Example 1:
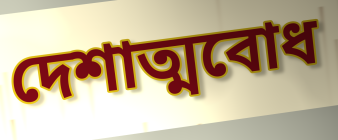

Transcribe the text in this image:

দেশাত্মবোধ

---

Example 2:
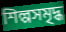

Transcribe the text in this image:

শিল্পসমৃদ্ধ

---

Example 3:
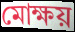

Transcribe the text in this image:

মোক্ষয়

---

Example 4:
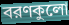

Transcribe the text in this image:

বরণকুলো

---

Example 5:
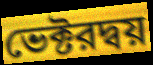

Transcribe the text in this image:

ভেক্টরদ্বয়